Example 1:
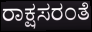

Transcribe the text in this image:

ರಾಕ್ಷಸರಂತೆ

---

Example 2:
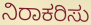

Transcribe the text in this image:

ನಿರಾಕರಿಸು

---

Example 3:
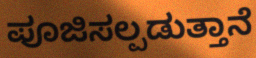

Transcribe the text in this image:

ಪೂಜಿಸಲ್ಪಡುತ್ತಾನೆ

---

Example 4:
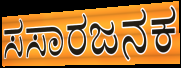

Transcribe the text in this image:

ಸಸಾರಜನಕ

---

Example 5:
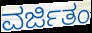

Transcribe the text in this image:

ವರ್ಜಿತಂ